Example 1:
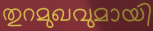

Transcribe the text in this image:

തുറമുഖവുമായി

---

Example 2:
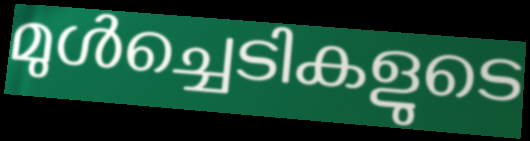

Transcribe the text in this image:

മുൾച്ചെടികളുടെ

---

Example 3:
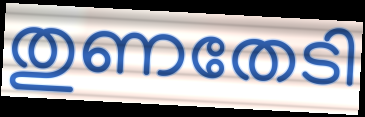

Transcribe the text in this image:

തുണതേടി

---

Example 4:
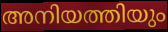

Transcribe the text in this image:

അനിയത്തിയും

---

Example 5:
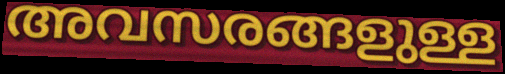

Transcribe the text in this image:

അവസരങ്ങളുള്ള